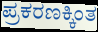
ಪ್ರಕರಣಕ್ಕಿಂತ